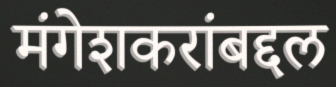
मंगेशकरांबद्दल